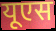
यूएस